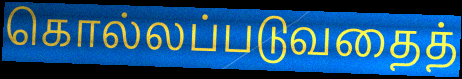
கொல்லப்படுவதைத்